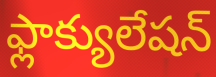
ఫ్లాక్యులేషన్